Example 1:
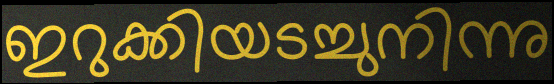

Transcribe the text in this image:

ഇറുക്കിയടച്ചുനിന്നു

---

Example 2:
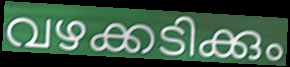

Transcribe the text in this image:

വഴക്കടിക്കും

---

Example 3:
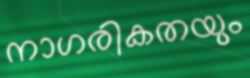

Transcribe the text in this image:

നാഗരികതയും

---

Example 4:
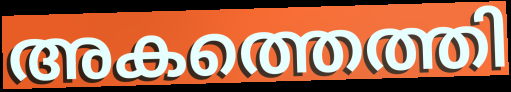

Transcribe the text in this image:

അകത്തെത്തി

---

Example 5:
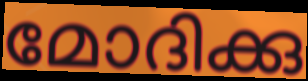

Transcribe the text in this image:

മോദിക്കു